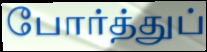
போர்த்துப்